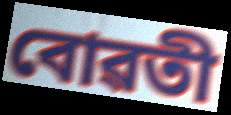
বোৱতী